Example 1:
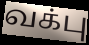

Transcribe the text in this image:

வக்பு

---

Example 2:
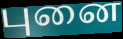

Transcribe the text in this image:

புனை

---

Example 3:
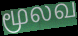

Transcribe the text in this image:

மூலவ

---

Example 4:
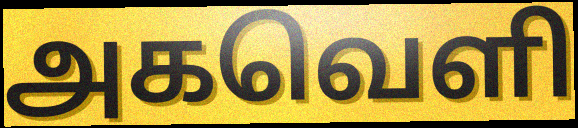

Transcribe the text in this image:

அகவெளி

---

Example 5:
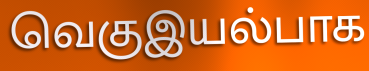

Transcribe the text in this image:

வெகுஇயல்பாக